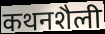
कथनशैली